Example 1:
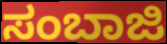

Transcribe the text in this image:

ಸಂಬಾಜಿ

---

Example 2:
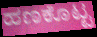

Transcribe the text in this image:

ಹಣಕೊಟ್ಟ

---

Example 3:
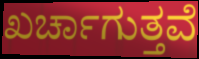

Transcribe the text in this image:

ಖರ್ಚಾಗುತ್ತವೆ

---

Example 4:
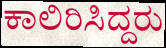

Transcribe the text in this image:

ಕಾಲಿರಿಸಿದ್ದರು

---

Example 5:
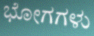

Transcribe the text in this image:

ಭೋಗಗಳು